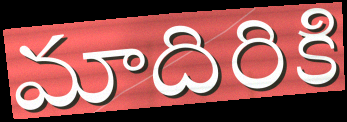
మాదిరికి